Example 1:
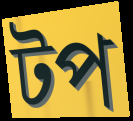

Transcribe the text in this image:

টপ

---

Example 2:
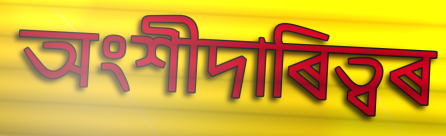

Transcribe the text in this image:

অংশীদাৰিত্বৰ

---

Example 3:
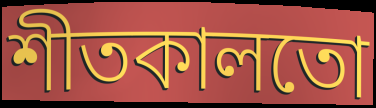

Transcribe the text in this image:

শীতকালতো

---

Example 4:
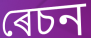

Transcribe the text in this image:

ৰেচন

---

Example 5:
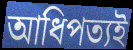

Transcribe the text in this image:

আধিপত্যই